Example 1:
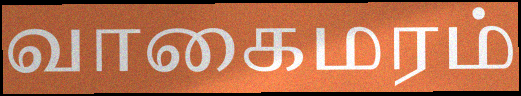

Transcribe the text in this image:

வாகைமரம்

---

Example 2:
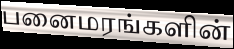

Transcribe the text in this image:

பனைமரங்களின்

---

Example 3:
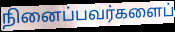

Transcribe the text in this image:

நினைப்பவர்களைப்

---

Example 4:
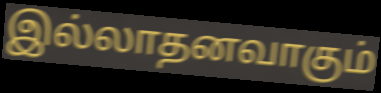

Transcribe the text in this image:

இல்லாதனவாகும்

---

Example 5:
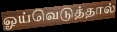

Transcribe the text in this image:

ஓய்வெடுத்தால்